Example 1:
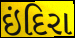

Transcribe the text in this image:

ઇંદિરા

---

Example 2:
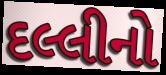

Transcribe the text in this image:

દલ્લીનો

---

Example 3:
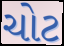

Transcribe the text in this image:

ચોટ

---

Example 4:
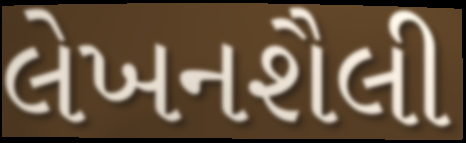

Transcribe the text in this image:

લેખનશૈલી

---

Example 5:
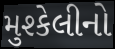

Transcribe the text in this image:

મુશ્કેલીનો